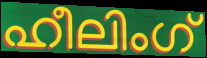
ഹീലിംഗ്